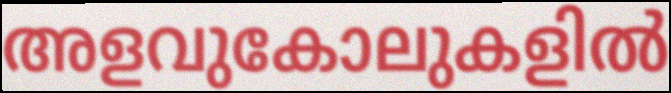
അളവുകോലുകളിൽ